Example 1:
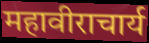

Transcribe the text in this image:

महावीराचार्य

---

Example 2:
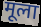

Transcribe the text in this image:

मूला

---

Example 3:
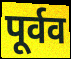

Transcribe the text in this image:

पूर्वव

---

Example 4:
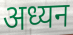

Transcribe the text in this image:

अध्यन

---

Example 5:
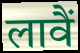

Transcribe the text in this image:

लावैं